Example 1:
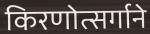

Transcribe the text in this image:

किरणोत्सर्गाने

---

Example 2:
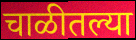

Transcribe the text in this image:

चाळीतल्या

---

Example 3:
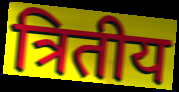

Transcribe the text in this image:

त्रितीय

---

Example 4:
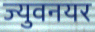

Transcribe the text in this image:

ज्युवनयर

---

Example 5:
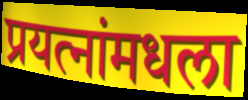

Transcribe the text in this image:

प्रयत्नांमधला